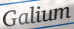
Galium